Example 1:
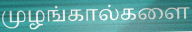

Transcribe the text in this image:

முழங்கால்களை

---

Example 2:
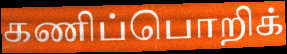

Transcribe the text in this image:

கணிப்பொறிக்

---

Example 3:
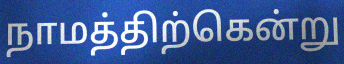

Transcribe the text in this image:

நாமத்திற்கென்று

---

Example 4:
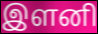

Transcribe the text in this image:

இளனி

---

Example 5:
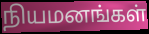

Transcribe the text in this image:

நியமனங்கள்